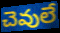
చెవులే